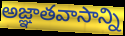
అజ్ఞాతవాసాన్ని